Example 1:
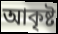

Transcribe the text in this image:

আকৃষ্ট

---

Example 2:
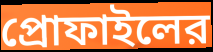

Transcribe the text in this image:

প্রোফাইলের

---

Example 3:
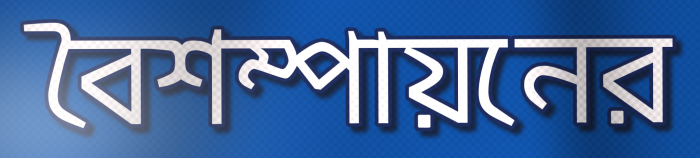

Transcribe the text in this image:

বৈশম্পায়নের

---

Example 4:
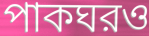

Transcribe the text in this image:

পাকঘরও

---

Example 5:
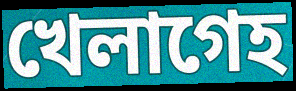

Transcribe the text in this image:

খেলাগেহ